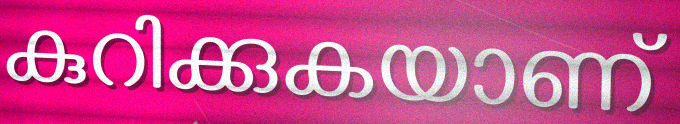
കുറിക്കുകയാണ്